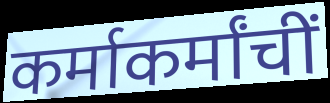
कर्माकर्मांचीं